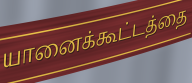
யானைக்கூட்டத்தை